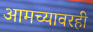
आमच्यावरही